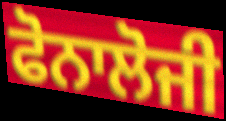
ਫੋਨਾਲੋਜੀ